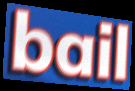
bail